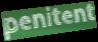
penitent